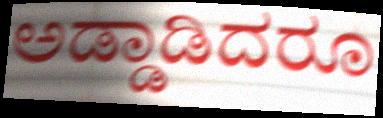
ಅಡ್ಡಾಡಿದರೂ